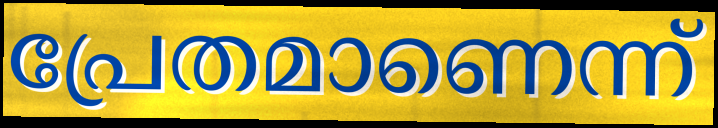
പ്രേതമാണെന്ന്